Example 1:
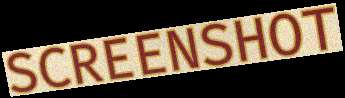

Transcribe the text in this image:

SCREENSHOT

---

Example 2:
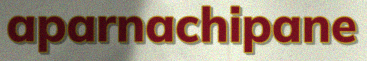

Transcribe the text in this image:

aparnachipane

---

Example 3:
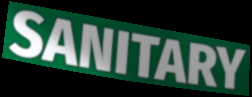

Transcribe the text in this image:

SANITARY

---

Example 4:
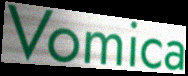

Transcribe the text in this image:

Vomica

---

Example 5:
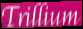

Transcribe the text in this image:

Trillium